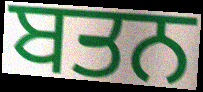
ਬਤਨ